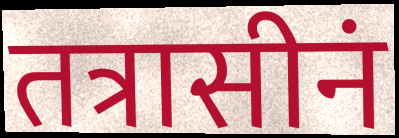
तत्रासीनं